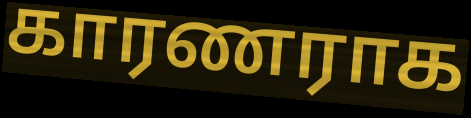
காரணராக